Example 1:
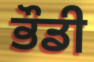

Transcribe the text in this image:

ਭੌਡੀ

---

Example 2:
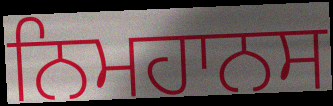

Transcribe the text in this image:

ਨਿਮਹਾਨਸ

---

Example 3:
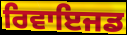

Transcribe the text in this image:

ਰਿਵਾਇਜਡ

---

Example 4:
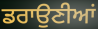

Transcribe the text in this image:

ਡਰਾਉਣੀਆਂ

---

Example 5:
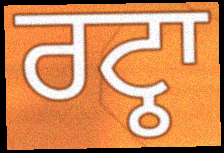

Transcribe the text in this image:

ਰਟ੍ਠਾ